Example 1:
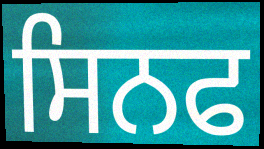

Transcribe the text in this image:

ਸਿਨਫ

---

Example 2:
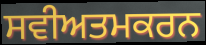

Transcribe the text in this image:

ਸਵੀਅਤਮਕਰਨ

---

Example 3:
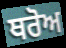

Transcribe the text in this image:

ਥਰੋਅ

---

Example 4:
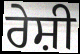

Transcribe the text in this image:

ਰੇਸ਼ੀ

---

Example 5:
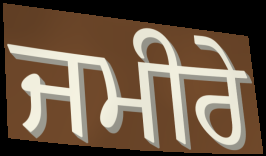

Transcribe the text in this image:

ਜਮੀਰੇ